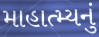
માહાત્મ્યનું